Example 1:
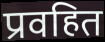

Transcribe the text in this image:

प्रवहित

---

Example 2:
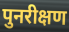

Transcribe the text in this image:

पुनरीक्षण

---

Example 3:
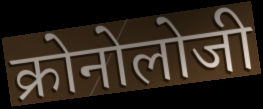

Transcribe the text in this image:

क्रोनोलोजी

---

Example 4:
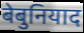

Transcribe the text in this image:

बेबुनियाद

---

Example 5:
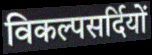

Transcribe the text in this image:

विकल्पसर्दियों